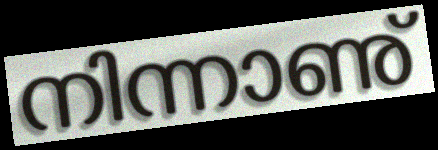
നിന്നാണു്